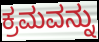
ಕ್ರಮವನ್ನು